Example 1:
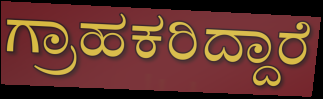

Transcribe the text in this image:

ಗ್ರಾಹಕರಿದ್ದಾರೆ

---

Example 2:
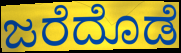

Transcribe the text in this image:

ಜರೆದೊಡೆ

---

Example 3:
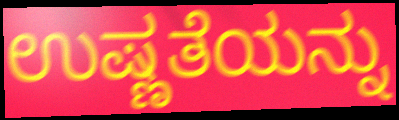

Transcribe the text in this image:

ಉಷ್ಣತೆಯನ್ನು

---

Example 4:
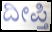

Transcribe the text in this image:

ದೀಪ್ತಿ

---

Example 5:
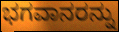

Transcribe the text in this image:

ಭಗವಾನರನ್ನು